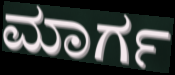
ಮಾರ್ಗ